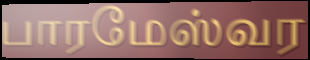
பாரமேஸ்வர